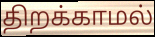
திறக்காமல்